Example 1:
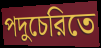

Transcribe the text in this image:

পদুচেরিতে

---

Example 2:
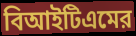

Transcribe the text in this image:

বিআইটিএমের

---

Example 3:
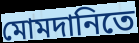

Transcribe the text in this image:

মোমদানিতে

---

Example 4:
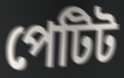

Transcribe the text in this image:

পেটিট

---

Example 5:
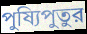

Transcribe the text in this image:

পুষ্যিপুতুর